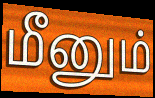
மீனும்